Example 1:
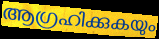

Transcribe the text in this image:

ആഗ്രഹിക്കുകയും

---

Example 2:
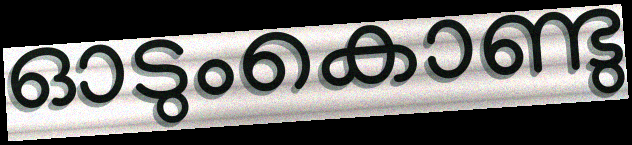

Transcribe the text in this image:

ഓടുംകൊണ്ടു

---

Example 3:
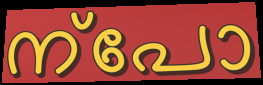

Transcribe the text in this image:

ന്പോ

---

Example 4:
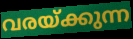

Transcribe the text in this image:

വരയ്ക്കുന്ന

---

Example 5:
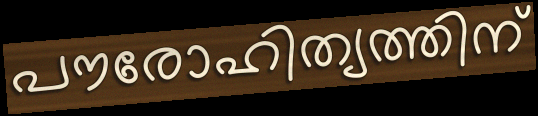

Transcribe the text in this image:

പൗരോഹിത്യത്തിന്